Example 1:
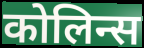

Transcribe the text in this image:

कोलिन्स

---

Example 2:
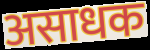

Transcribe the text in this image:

असाधक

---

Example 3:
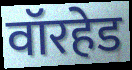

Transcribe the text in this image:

वॉरहेड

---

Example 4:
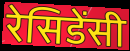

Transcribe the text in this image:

रेसिडेंसी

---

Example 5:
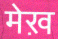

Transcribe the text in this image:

मेख़